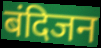
बंदिजन